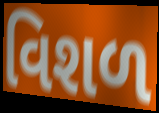
વિશળ